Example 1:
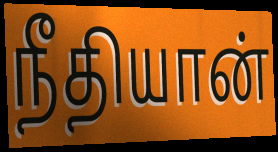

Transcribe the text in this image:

நீதியான்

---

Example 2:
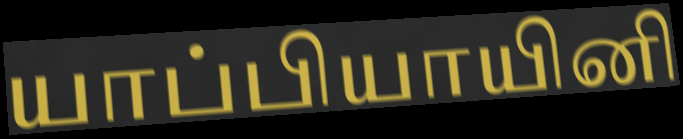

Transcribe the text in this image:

யாப்பியாயினி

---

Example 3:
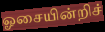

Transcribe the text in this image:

ஓசையின்றிச்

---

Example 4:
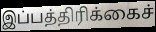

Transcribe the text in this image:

இப்பத்திரிக்கைச்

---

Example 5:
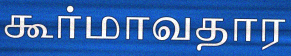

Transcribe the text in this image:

கூர்மாவதார